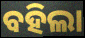
ବହିଲା